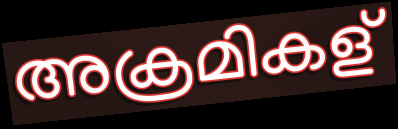
അക്രമികള്